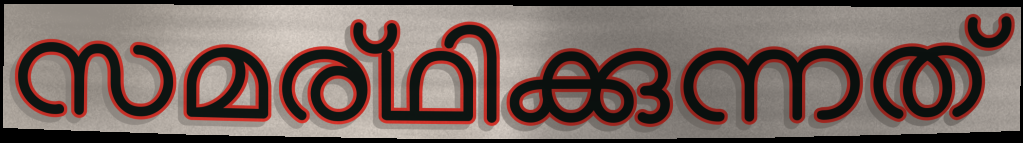
സമര്ഥിക്കുന്നത്